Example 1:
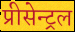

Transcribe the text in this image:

प्रीसेन्ट्रल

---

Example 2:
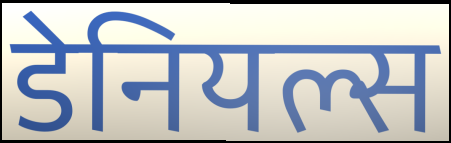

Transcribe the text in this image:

डेनियल्स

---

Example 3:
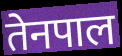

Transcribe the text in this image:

तेनपाल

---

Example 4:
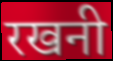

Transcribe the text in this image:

रखनी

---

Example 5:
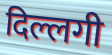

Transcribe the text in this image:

दिल्‍लगी